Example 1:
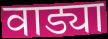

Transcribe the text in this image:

वाड्या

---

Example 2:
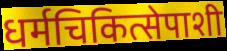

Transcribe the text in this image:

धर्मचिकित्सेपाशी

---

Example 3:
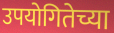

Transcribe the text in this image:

उपयोगितेच्या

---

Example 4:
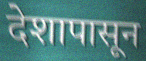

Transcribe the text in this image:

देशापासून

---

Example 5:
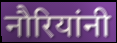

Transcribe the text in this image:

नौरियांनी